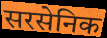
सरसेनिक